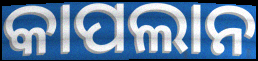
କାପଲାନ